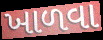
ખાળવા